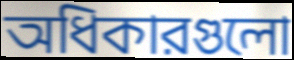
অধিকারগুলো